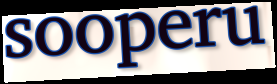
sooperu